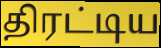
திரட்டிய